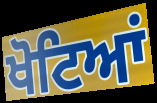
ਖੋਟਿਆਂ